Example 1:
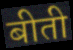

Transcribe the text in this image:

बीती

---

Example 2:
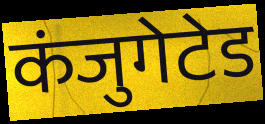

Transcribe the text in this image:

कंजुगेटेड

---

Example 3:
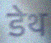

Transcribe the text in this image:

डेथ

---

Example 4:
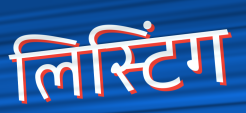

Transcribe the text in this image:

लिस्टिंग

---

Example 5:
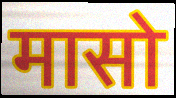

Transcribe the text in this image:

मासो